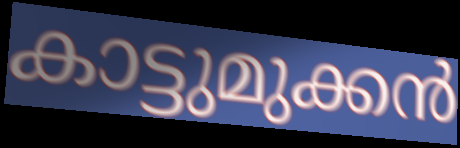
കാട്ടുമുക്കൻ